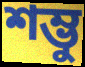
শম্ভু